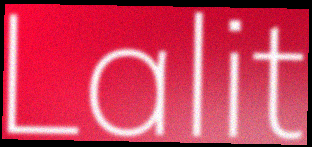
Lalit